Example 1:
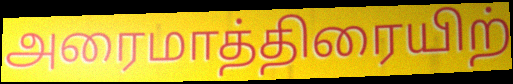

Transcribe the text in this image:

அரைமாத்திரையிற்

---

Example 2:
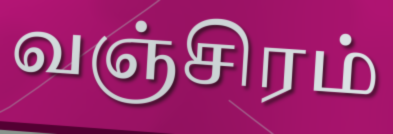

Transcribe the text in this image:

வஞ்சிரம்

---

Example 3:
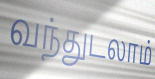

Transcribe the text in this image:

வந்துடலாம்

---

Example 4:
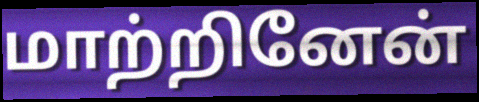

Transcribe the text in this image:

மாற்றினேன்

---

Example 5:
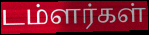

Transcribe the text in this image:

டம்ளர்கள்